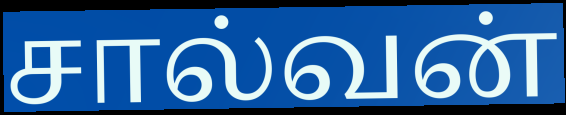
சால்வன்